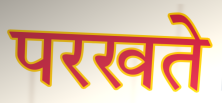
परखते